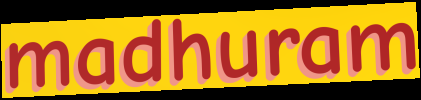
madhuram